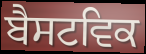
ਬੈਸਟਵਿਕ